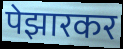
पेझारकर